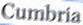
Cumbria